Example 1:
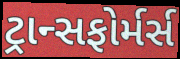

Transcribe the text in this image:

ટ્રાન્સફોર્મર્સ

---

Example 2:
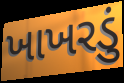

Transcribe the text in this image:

ખાખરડું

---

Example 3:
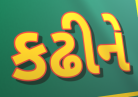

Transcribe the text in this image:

કઢીને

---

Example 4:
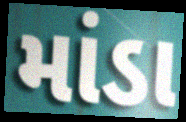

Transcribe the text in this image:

માંડા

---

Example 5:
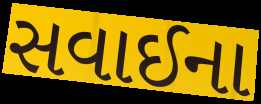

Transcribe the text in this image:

સવાઈના